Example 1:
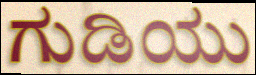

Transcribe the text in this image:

ಗುಡಿಯು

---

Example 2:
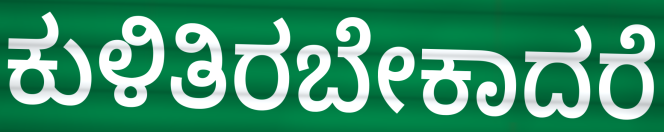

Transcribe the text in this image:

ಕುಳಿತಿರಬೇಕಾದರೆ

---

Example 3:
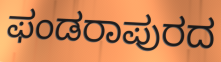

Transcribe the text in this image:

ಫಂಡರಾಪುರದ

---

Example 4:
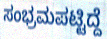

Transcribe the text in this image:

ಸಂಭ್ರಮಪಟ್ಟಿದ್ದೆ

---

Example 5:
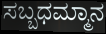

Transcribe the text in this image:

ಸಬ್ಬಧಮ್ಮಾನ